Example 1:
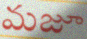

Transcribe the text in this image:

మజూ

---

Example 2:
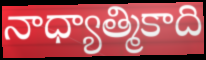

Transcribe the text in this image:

నాధ్యాత్మికాది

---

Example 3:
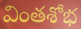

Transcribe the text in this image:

వింతశోభ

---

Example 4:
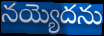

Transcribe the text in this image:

నయ్యెదను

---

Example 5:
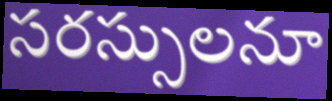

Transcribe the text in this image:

సరస్సులనూ